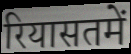
रियासतमें